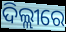
ଦିଲ୍ଲୀରେ